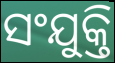
ସଂଯୁକ୍ତି